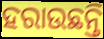
ହରାଉଛନ୍ତି